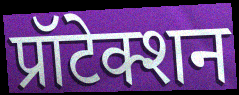
प्रॉटेक्शन